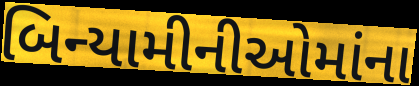
બિન્યામીનીઓમાંના